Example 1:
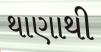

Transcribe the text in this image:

થાણાથી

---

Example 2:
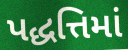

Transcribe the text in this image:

પદ્ધત્તિમાં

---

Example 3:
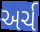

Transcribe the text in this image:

અર્ચ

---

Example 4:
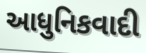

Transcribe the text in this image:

આધુનિકવાદી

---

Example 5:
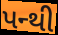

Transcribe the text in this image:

પન્થી